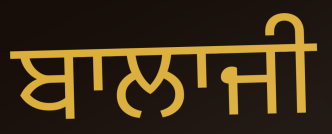
ਬਾਲਾਜੀ